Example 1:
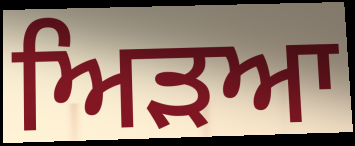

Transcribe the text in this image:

ਅਿੜਆ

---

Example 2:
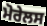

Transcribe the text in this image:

ਮੋਰੇਲਸ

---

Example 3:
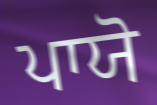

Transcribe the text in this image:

ਪਾਯੋ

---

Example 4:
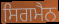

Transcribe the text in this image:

ਸਿਗਮੈਨ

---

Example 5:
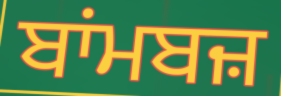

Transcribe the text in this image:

ਬਾਂਮਬਜ਼